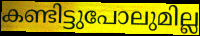
കണ്ടിട്ടുപോലുമില്ല